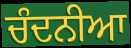
ਚੰਦਨੀਆ